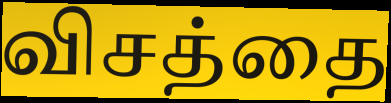
விசத்தை